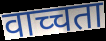
वाच्चता